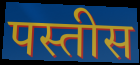
पस्तीस